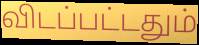
விடப்பட்டதும்